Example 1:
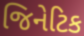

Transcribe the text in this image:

જિનેટિક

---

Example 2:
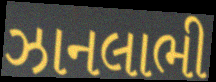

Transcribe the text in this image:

ઝાનલાભી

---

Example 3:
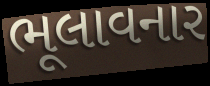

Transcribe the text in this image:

ભૂલાવનાર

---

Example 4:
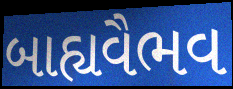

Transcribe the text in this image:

બાહ્યવૈભવ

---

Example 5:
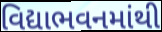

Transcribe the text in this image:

વિદ્યાભવનમાંથી